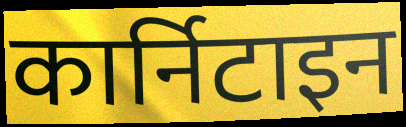
कार्निटाइन